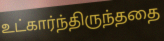
உட்கார்ந்திருந்ததை